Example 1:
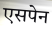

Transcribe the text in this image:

एसपेन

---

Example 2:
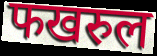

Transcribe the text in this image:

फखरुल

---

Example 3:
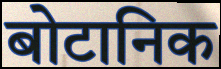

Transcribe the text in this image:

बोटानिक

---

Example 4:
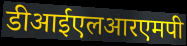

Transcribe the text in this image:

डीआईएलआरएमपी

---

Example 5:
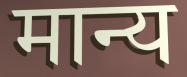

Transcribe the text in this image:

मान्य